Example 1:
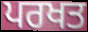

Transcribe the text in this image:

ਪਰਖਤ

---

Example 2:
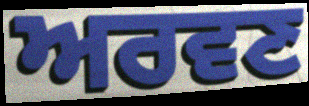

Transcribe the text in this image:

ਅਰਵਣ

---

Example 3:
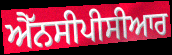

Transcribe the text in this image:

ਐੱਨਸੀਪੀਸੀਆਰ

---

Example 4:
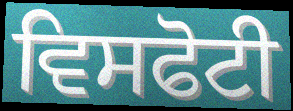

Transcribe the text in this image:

ਵਿਸਫੋਟੀ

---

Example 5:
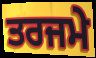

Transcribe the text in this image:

ਤਰਜਮੇ